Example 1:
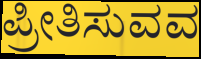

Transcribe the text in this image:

ಪ್ರೀತಿಸುವವ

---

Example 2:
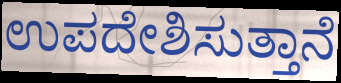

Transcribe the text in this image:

ಉಪದೇಶಿಸುತ್ತಾನೆ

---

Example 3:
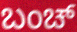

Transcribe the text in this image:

ಬಂಚ್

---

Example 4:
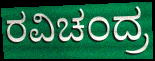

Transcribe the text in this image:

ರವಿಚಂದ್ರ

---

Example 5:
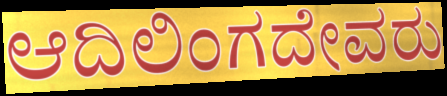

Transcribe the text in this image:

ಆದಿಲಿಂಗದೇವರು